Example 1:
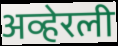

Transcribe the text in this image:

अव्हेरली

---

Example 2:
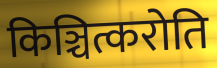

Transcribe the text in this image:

किञ्चित्करोति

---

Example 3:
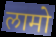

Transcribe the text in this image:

लामो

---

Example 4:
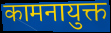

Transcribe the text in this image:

कामनायुक्त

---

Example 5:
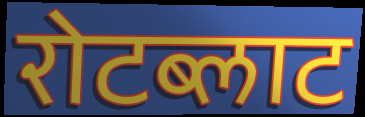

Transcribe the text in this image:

रोटब्लाट